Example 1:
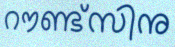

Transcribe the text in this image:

റൗണ്ട്സിനു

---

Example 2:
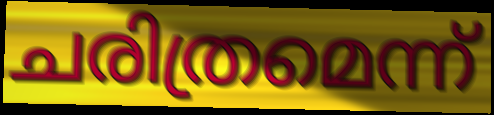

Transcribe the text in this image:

ചരിത്രമെന്ന്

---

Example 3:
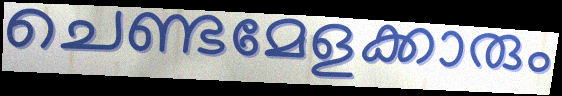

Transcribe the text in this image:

ചെണ്ടമേളക്കാരും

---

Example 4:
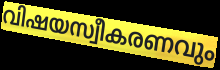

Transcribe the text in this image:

വിഷയസ്വീകരണവും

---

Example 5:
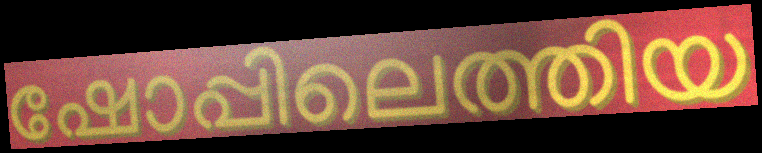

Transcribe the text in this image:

ഷോപ്പിലെത്തിയ